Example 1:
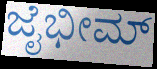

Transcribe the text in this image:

ಜೈಭೀಮ್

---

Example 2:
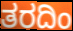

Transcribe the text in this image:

ತರದಿಂ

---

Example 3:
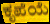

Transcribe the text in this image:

ಕೃಪೆಯೆ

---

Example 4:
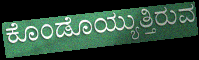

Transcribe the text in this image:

ಕೊಂಡೊಯ್ಯುತ್ತಿರುವ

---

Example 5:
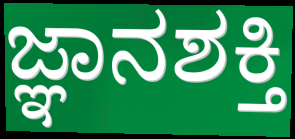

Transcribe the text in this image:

ಜ್ಞಾನಶಕ್ತಿ